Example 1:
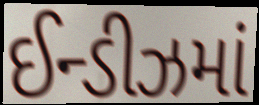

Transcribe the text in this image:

ઈન્ડીઝમાં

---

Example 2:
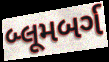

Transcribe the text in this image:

બ્લૂમબર્ગ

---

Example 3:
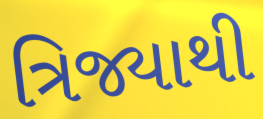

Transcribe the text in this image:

ત્રિજ્યાથી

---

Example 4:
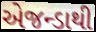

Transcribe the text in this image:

એજન્ડાથી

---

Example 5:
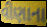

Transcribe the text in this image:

વીણાના